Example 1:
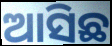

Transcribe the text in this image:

ଆସିଛ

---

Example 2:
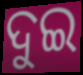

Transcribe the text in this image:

ଦୁଇ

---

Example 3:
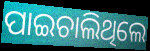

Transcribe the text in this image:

ପାଇଚାଲିଥିଲେ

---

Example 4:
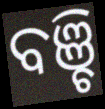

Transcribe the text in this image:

ବଞ୍ଚି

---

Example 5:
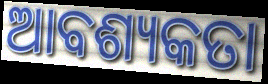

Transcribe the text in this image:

ଆବଶ୍ୟକତା